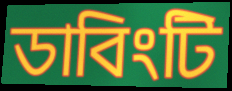
ডাবিংটি